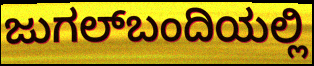
ಜುಗಲ್‌ಬಂದಿಯಲ್ಲಿ